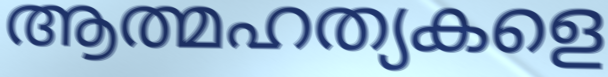
ആത്മഹത്യകളെ